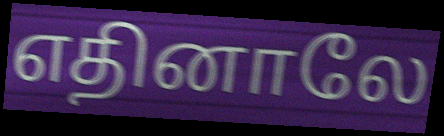
எதினாலே